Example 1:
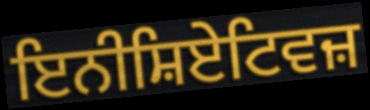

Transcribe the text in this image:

ਇਨੀਸ਼ਿਏਟਿਵਜ਼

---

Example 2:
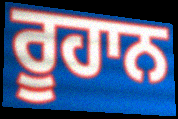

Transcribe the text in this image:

ਰੂਹਾਨ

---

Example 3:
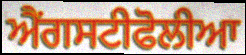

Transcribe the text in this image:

ਐਂਗਸਟੀਫੋਲੀਆ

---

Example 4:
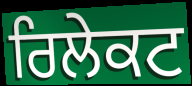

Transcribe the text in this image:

ਰਿਲੇਕਟ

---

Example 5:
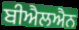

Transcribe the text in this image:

ਬੀਐਲਐਨ